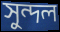
সুন্দল